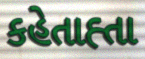
કહેતાહ્તા